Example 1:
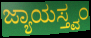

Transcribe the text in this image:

ಜ್ಯಾಯಸ್ತ್ವಂ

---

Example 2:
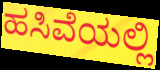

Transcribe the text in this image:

ಹಸಿವೆಯಲ್ಲಿ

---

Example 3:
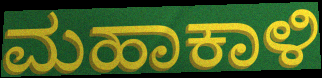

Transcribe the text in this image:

ಮಹಾಕಾಳಿ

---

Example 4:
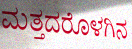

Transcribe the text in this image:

ಮತ್ತದರೊಳಗಿನ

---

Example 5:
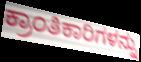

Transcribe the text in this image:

ಕ್ರಾಂತಿಕಾರಿಗಳನ್ನು